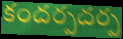
కందర్పదర్ప